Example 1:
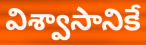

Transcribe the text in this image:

విశ్వాసానికే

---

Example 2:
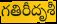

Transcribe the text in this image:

గతిరీదృశీ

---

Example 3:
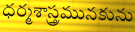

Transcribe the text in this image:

ధర్మశాస్త్రమునకును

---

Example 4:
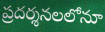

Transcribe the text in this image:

ప్రదర్శనలలోనూ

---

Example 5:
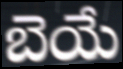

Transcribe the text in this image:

బెయే